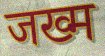
जख्म